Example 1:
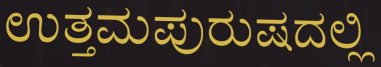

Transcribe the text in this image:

ಉತ್ತಮಪುರುಷದಲ್ಲಿ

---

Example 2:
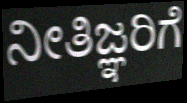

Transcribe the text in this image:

ನೀತಿಜ್ಞರಿಗೆ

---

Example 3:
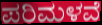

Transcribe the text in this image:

ಪರಿಮಳವೆ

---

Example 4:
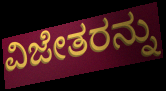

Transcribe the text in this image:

ವಿಜೇತರನ್ನು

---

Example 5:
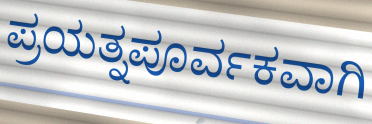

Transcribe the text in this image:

ಪ್ರಯತ್ನಪೂರ್ವಕವಾಗಿ